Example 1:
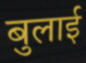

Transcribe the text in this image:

बुलाई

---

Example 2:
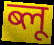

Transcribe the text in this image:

ब्लू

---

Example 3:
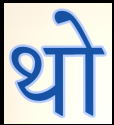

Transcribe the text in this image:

थो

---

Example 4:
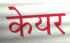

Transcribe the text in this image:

केयर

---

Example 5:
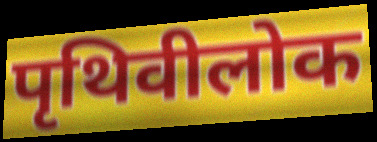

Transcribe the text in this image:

पृथिवीलोक